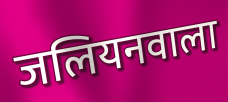
जलियनवाला